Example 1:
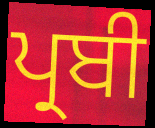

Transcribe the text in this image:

ਪ੍ਰਬੀ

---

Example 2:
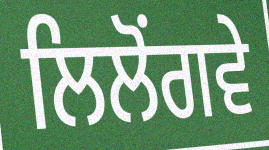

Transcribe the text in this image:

ਲਿਲੋਂਗਵੇ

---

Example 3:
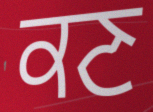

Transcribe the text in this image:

ਕਣ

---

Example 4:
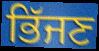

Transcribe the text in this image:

ਭਿੱਜਣ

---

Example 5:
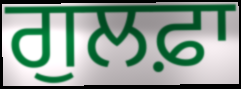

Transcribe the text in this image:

ਗੁਲਫ਼ਾ